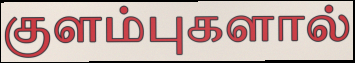
குளம்புகளால்